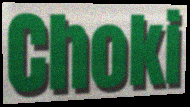
Choki